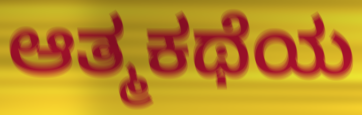
ಆತ್ಮಕಥೆಯ